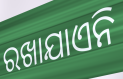
ରଖାଯାଏନି